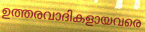
ഉത്തരവാദികളായവരെ